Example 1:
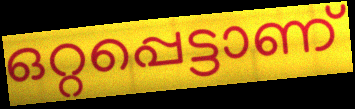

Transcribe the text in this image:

ഒറ്റപ്പെട്ടാണ്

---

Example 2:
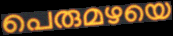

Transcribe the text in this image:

പെരുമഴയെ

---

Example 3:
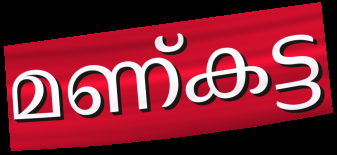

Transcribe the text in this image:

മണ്കട്ട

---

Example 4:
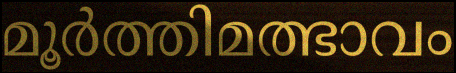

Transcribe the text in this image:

മൂർത്തിമത്ഭാവം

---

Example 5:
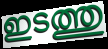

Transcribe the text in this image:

ഇടത്തു